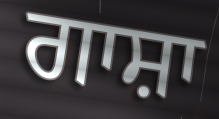
ਗਾਸ਼ਾ